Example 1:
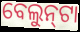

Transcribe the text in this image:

ବେଲୁନ୍‌ଟା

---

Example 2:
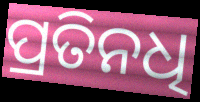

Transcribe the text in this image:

ପ୍ରତିନଧି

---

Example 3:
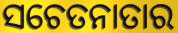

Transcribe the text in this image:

ସଚେତନାତାର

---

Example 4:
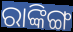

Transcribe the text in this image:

ରାଙ୍କିଙ୍ଗ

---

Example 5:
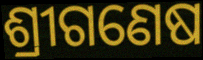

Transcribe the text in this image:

ଶ୍ରୀଗଣେଷ